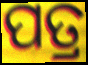
ପତ୍ର